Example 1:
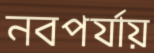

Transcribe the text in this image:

নবপর্যায়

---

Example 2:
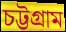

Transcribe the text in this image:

চট্টগ্রাম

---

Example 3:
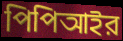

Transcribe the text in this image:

পিপিআইর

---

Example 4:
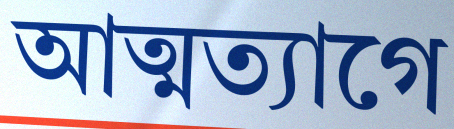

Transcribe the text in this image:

আত্মত্যাগে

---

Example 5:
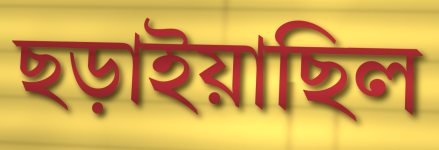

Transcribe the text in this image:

ছড়াইয়াছিল